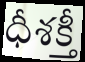
ధీశక్తీ